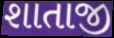
શાતાજી